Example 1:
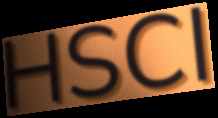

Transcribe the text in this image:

HSCI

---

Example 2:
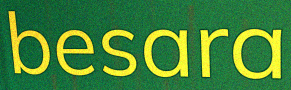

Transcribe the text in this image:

besara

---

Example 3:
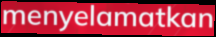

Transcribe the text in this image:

menyelamatkan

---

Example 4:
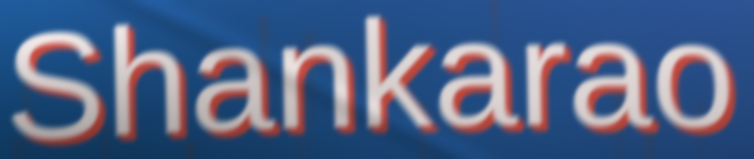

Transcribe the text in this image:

Shankarao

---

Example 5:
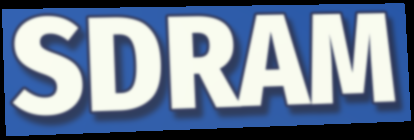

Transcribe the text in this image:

SDRAM